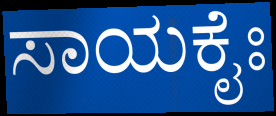
ಸಾಯಕೈಃ